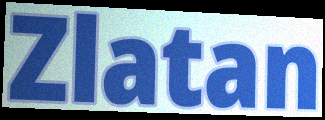
Zlatan